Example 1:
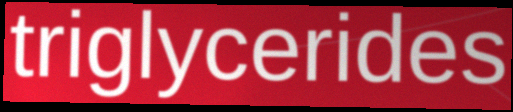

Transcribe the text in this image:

triglycerides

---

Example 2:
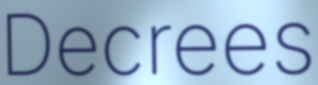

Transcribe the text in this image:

Decrees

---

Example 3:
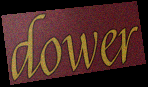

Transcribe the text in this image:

dower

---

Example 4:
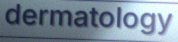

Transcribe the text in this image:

dermatology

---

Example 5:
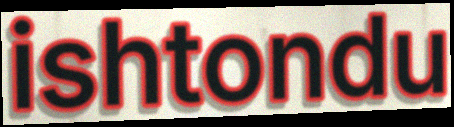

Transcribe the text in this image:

ishtondu